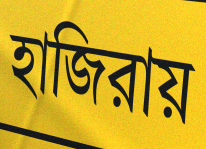
হাজিরায়